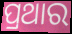
ପ୍ରଥାର